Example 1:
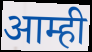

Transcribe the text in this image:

आम्ही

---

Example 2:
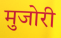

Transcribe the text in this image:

मुजोरी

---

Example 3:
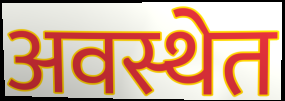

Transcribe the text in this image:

अवस्थेत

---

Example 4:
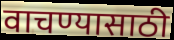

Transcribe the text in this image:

वाचण्यासाठी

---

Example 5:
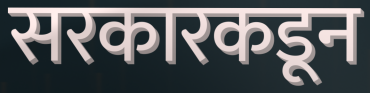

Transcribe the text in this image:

सरकारकडून